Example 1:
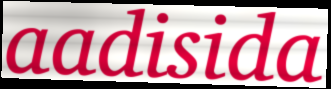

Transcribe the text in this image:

aadisida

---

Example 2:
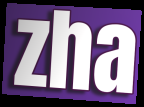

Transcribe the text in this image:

zha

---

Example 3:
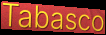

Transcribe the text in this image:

Tabasco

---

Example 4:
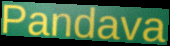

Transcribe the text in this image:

Pandava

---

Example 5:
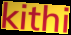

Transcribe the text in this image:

kithi